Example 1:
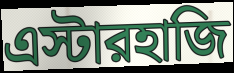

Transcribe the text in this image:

এস্টারহাজি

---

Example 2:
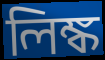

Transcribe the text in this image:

লিঙ্ক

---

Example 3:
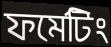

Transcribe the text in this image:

ফর্মেটিং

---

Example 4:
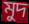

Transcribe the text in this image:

মুদ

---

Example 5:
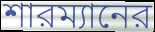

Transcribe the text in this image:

শারম্যানের